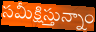
సమీక్షిస్తున్నాం